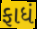
ફાધં